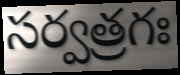
సర్వత్రగః